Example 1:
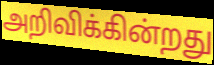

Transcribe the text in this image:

அறிவிக்கின்றது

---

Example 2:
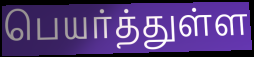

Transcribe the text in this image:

பெயர்த்துள்ள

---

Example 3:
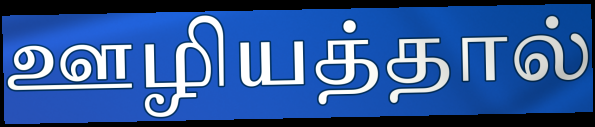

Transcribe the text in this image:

ஊழியத்தால்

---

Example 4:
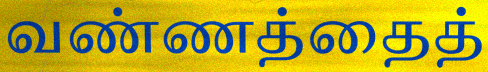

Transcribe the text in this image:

வண்ணத்தைத்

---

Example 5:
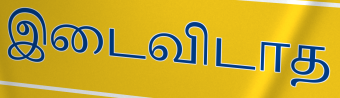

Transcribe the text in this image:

இடைவிடாத